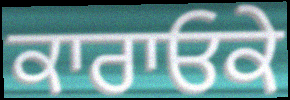
ਕਾਰਾਓਕੇ